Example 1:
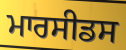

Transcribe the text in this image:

ਮਾਰਸੀਡਸ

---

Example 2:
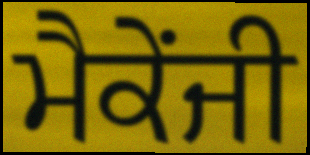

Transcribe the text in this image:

ਮੈਕੇਂਜੀ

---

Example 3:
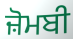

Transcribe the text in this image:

ਜ਼ੋਮਬੀ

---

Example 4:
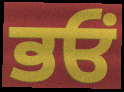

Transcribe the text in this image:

ਭਓਂ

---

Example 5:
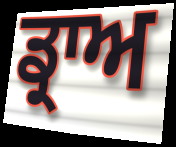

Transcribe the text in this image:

ਡ੍ਰਾਅ